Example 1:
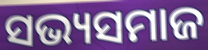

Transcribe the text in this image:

ସଭ୍ୟସମାଜ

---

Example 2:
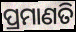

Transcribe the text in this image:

ପ୍ରମାଣତି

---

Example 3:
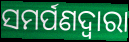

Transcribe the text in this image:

ସମର୍ପଣଦ୍ୱାରା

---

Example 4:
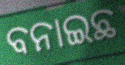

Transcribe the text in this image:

ବନାଇଛ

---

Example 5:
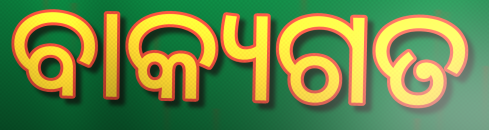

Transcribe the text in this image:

ବାକ୍ୟଗତ